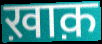
ख़ाक़